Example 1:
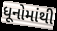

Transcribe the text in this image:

ધૂનોમાંથી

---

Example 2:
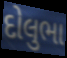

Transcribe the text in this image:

દોલુભા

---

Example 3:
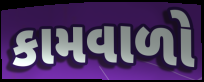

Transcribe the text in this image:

કામવાળો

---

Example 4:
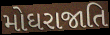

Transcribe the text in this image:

મોઘરાજાતિ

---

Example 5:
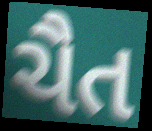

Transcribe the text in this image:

ચૈત